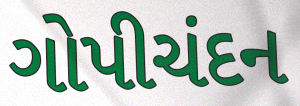
ગોપીચંદન